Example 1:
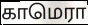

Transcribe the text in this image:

காமெரா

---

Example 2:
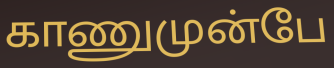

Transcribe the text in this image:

காணுமுன்பே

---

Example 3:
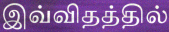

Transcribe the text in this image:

இவ்விதத்தில்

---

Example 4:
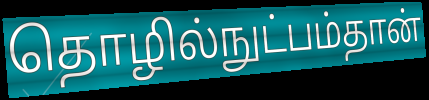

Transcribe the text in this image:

தொழில்நுட்பம்தான்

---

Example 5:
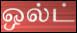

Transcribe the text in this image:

ஒல்ட்